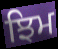
ਝਿਮ